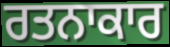
ਰਤਨਾਕਾਰ